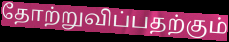
தோற்றுவிப்பதற்கும்